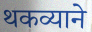
थकव्याने